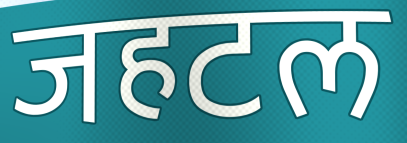
जहटल